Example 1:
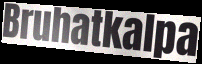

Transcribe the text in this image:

Bruhatkalpa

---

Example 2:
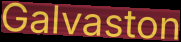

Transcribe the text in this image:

Galvaston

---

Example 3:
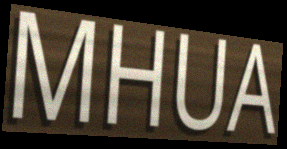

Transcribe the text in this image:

MHUA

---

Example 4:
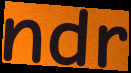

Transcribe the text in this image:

ndr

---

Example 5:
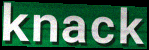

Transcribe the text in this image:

knack